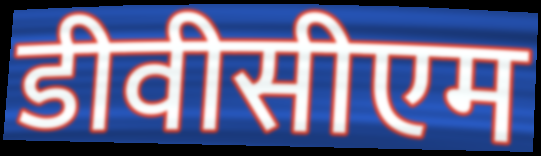
डीवीसीएम